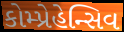
કોમ્પ્રેહેન્સિવ